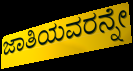
ಜಾತಿಯವರನ್ನೇ